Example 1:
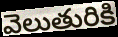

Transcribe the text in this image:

వెలుతురికి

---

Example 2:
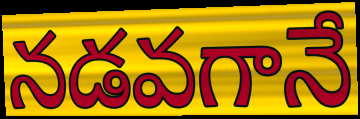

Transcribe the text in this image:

నడవగానే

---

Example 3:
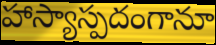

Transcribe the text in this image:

హాస్యాస్పదంగానూ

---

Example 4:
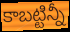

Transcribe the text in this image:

కాబట్టిన్నీ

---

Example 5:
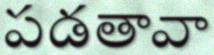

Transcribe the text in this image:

పడతావా